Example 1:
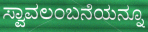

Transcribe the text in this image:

ಸ್ವಾವಲಂಬನೆಯನ್ನೂ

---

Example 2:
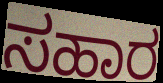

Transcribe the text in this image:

ಸಹಾರ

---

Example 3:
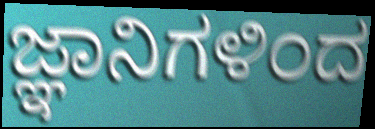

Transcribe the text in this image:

ಜ್ಞಾನಿಗಳಿಂದ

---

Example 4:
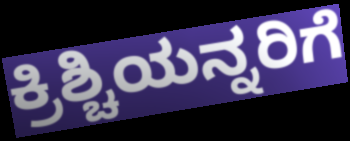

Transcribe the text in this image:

ಕ್ರಿಶ್ಚಿಯನ್ನರಿಗೆ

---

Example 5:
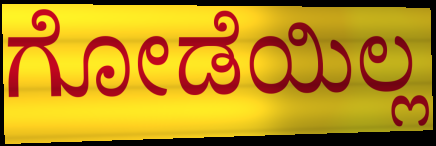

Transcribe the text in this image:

ಗೋಡೆಯಿಲ್ಲ